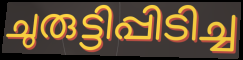
ചുരുട്ടിപ്പിടിച്ച